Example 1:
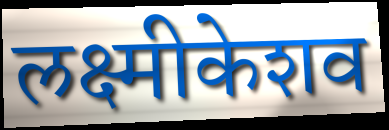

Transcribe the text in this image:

लक्ष्मीकेशव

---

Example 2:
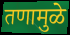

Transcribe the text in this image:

तणामुळे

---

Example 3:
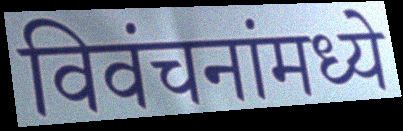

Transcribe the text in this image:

विवंचनांमध्ये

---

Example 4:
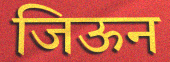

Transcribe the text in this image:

जिऊन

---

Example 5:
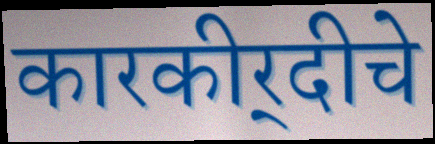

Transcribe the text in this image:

कारकीर्दीचे